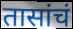
तासांचं